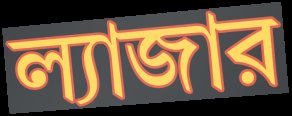
ল্যাজার